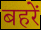
बहरें